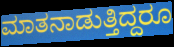
ಮಾತನಾಡುತ್ತಿದ್ದರೂ